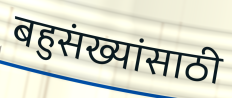
बहुसंख्यांसाठी